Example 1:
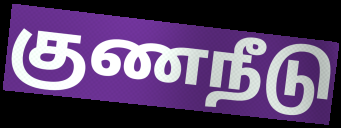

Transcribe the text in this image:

குணநீடு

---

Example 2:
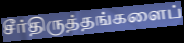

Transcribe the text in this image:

சீர்திருத்தங்களைப்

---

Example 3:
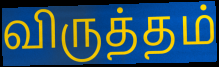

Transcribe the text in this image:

விருத்தம்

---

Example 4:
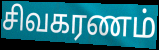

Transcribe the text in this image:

சிவகரணம்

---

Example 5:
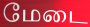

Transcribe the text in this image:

மேடை